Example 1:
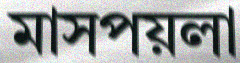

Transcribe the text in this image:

মাসপয়লা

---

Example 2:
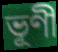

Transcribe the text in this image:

ভূণী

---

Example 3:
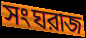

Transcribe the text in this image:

সংঘরাজ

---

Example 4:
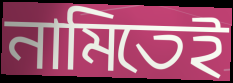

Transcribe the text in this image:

নামিতেই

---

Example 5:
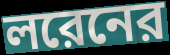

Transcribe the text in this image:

লরেনের